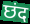
छंद